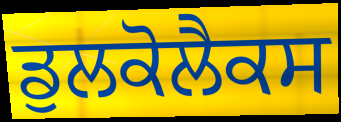
ਡੁਲਕੋਲੈਕਸ